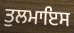
ਤੁਲਮਾਇਸ